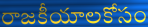
రాజకీయాలకోసం